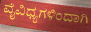
ವೈವಿಧ್ಯಗಳಿಂದಾಗಿ